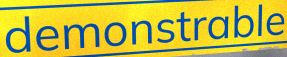
demonstrable